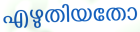
എഴുതിയതോ